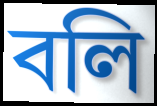
বলি